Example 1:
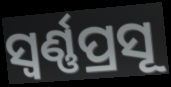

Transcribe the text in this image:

ସ୍ବର୍ଣ୍ଣପ୍ରସୂ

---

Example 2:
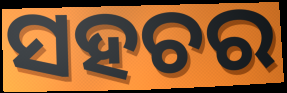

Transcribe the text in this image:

ସହଚର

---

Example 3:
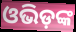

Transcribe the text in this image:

ଓଭିଡ଼ଙ୍କ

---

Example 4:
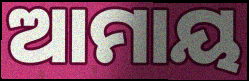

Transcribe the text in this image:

ଆମାୟ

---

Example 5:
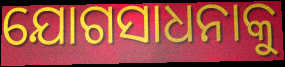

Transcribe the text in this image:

ଯୋଗସାଧନାକୁ